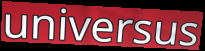
universus